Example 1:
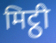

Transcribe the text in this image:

मिट्ठी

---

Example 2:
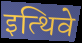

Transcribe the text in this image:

इत्थिवे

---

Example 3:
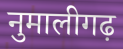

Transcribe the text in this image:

नुमालीगढ़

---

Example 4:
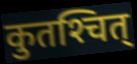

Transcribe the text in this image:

कुतश्चित्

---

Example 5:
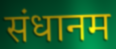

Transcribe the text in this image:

संधानम